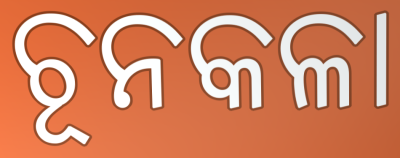
ଚୂନକଳା